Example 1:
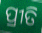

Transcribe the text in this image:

ପ୍ରୀତି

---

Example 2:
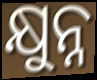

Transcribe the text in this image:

କ୍ଷୁନ୍ନ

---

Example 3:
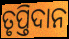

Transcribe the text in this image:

ତୃପ୍ତିଦାନ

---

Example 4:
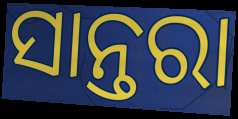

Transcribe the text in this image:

ସାନ୍ତରା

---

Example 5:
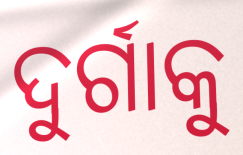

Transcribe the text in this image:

ଦୁର୍ଗାକୁ